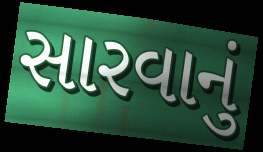
સારવાનું